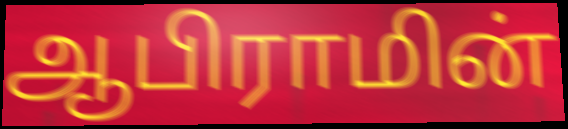
ஆபிராமின்